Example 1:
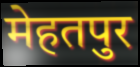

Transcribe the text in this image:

मेहतपुर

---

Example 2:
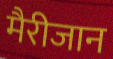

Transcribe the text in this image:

मैरीजान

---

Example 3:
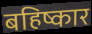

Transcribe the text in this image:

बहिष्‍कार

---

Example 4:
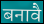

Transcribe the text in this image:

बनावै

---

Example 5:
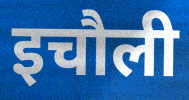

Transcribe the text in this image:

इचौली